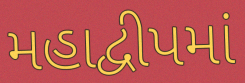
મહાદ્વીપમાં